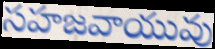
సహజవాయువు